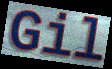
Gil